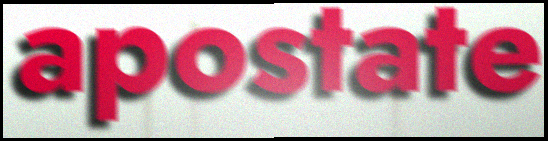
apostate